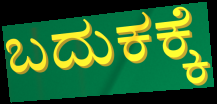
ಬದುಕಕ್ಕೆ